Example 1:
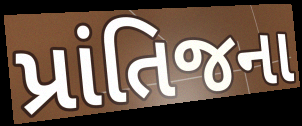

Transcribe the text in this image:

પ્રાંતિજના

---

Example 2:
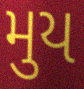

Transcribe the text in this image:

મુય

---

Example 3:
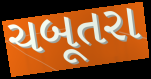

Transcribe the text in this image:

ચબૂતરા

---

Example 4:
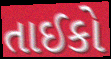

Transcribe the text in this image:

તાઈકો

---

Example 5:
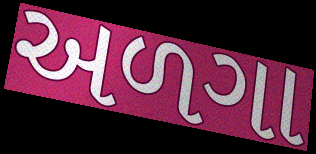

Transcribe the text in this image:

અળગા